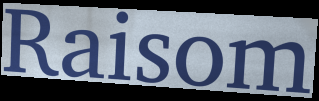
Raisom